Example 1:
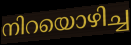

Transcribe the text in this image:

നിറയൊഴിച്ച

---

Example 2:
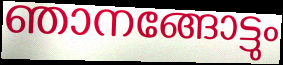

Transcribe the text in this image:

ഞാനങ്ങോട്ടും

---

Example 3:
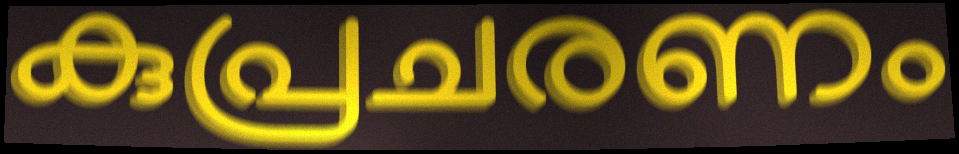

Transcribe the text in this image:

കുപ്രചരണം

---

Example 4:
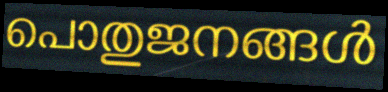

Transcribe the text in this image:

പൊതുജനങ്ങൾ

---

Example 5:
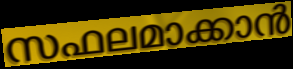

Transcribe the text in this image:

സഫലമാക്കാൻ